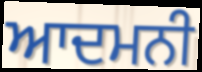
ਆਦਮਨੀ